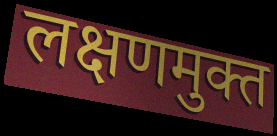
लक्षणमुक्त